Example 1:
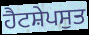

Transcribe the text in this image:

ਹੈਟਸ਼ੇਪਸੁਤ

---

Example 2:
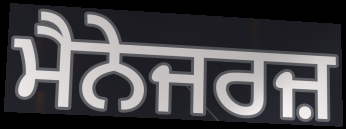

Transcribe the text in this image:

ਮੈਨੇਜਰਜ਼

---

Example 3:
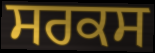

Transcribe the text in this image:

ਸਰਕਸ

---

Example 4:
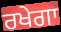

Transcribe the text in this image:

ਰਖੇਗਾ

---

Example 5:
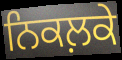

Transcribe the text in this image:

ਨਿਕਲ਼ਕੇ